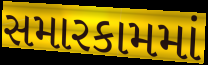
સમારકામમાં